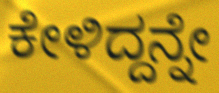
ಕೇಳಿದ್ದನ್ನೇ